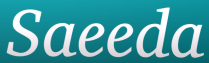
Saeeda